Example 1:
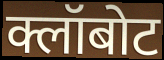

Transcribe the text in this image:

क्लॉबोट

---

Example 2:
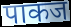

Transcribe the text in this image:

पाकज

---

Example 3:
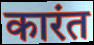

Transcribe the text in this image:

कारंत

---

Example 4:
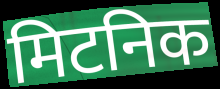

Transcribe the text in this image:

मिटनिक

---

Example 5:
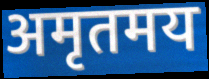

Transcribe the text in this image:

अमृतमय